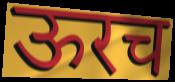
ऊरच